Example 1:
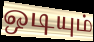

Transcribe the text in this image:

ஒடியும்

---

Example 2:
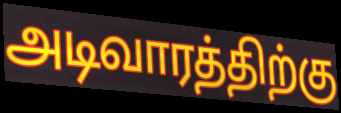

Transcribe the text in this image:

அடிவாரத்திற்கு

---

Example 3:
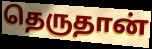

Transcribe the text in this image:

தெருதான்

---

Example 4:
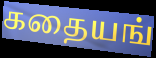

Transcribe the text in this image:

கதையங்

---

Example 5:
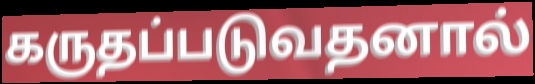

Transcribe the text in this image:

கருதப்படுவதனால்